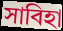
সাবিহা